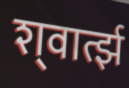
श्वार्त्झ